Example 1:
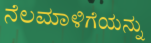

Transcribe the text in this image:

ನೆಲಮಾಳಿಗೆಯನ್ನು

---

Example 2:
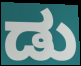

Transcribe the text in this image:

ಡು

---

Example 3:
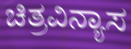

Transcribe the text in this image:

ಚಿತ್ರವಿನ್ಯಾಸ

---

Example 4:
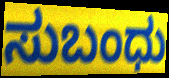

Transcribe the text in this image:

ಸುಬಂಧು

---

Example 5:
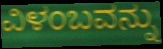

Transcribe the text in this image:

ವಿಳಂಬವನ್ನು